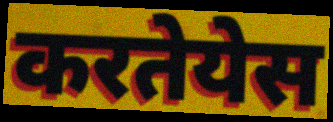
करतेयेस